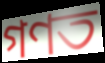
গণত